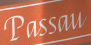
Passau